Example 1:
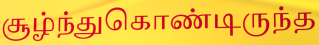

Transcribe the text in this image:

சூழ்ந்துகொண்டிருந்த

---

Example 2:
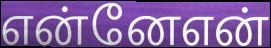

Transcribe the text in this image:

என்னேஎன்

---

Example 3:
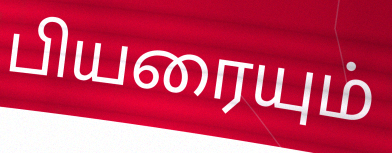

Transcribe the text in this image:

பியரையும்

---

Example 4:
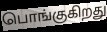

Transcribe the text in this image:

பொங்குகிறது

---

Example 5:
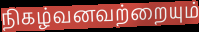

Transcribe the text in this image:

நிகழ்வனவற்றையும்